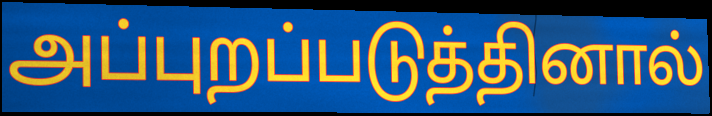
அப்புறப்படுத்தினால்